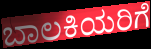
ಬಾಲಕಿಯರಿಗೆ